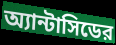
অ্যান্টাসিডের